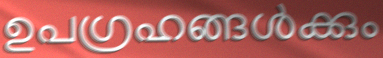
ഉപഗ്രഹങ്ങൾക്കും